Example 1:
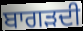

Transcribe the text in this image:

ਬਾਗੜਦੀ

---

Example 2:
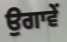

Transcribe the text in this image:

ਉਗਾਵੇਂ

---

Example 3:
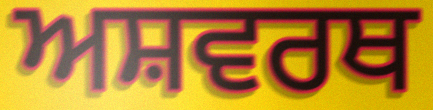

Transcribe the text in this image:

ਅਸ਼ਵਰਥ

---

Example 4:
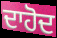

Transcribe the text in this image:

ਦਾਹੋਦ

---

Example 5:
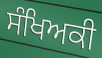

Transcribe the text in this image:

ਸੰਖਿਅਕੀ